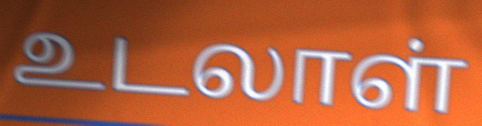
உடலாள்